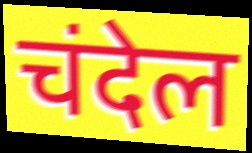
चंदेल